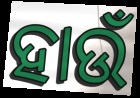
ହାଉଁ